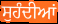
ਸੁਹੰਦੀਆਂ